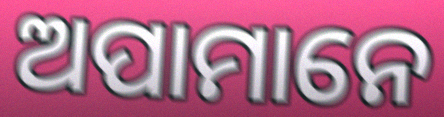
ଅପାମାନେ